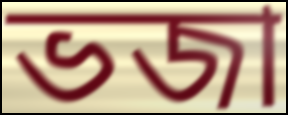
ভজা